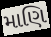
માણિ